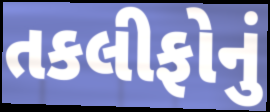
તકલીફોનું